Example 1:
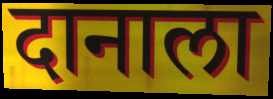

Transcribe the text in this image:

दानाला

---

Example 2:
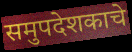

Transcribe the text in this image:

समुपदेशकाचे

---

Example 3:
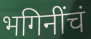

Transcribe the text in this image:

भगिनींचं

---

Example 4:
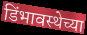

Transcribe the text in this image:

डिंभावस्थेच्या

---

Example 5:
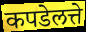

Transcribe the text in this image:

कपडेलत्ते